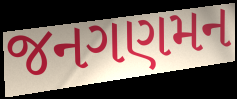
જનગણમન